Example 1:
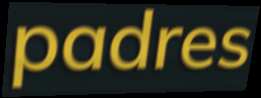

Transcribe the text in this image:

padres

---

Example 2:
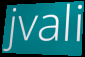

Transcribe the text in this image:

jvali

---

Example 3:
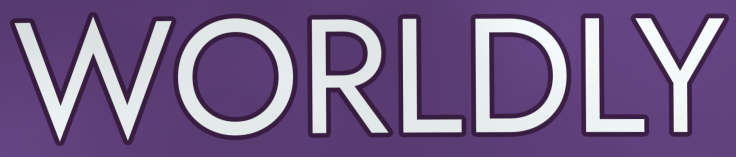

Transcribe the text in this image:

WORLDLY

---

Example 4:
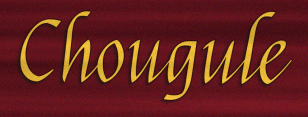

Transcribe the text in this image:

Chougule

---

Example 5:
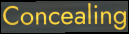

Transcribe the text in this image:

Concealing